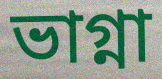
ভাগ্না